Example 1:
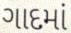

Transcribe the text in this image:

ગાદમાં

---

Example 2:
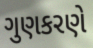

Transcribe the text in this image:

ગુણકરણે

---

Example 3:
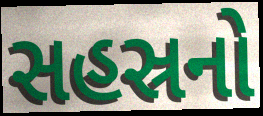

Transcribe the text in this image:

સહસ્રનો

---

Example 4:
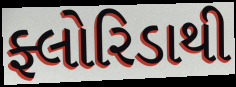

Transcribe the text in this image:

ફ્લોરિડાથી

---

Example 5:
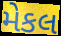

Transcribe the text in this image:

મેકલ